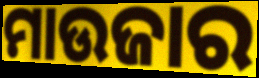
ମାଉଜାର